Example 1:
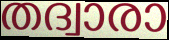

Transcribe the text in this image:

തദ്വാരാ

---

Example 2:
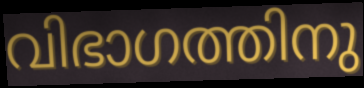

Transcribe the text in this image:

വിഭാഗത്തിനു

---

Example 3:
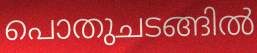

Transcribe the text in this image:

പൊതുചടങ്ങിൽ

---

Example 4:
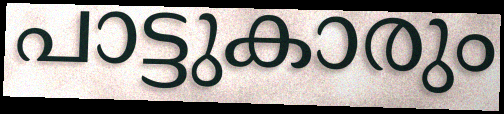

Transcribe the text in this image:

പാട്ടുകാരും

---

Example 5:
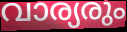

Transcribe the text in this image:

വാര്യരും